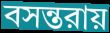
বসন্তরায়